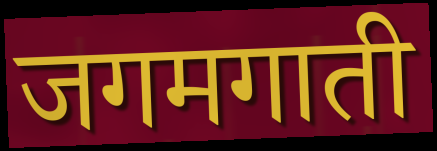
जगमगाती